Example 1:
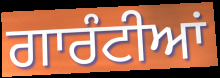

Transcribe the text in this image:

ਗਾਰੰਟੀਆਂ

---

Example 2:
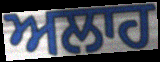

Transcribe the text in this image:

ਅਲਾਹ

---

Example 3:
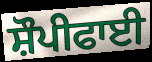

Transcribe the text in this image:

ਸ਼ੌਪੀਫਾਈ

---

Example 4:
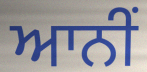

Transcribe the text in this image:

ਆਨੀਂ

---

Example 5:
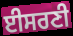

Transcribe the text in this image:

ਈਸਰਣੀ